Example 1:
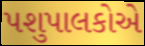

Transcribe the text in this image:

પશુપાલકોએ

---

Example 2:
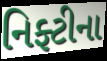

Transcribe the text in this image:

નિફ્ટીના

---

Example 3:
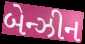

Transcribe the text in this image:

બેન્ઝીન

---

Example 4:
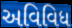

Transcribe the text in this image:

અવિવિધ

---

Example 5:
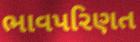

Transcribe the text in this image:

ભાવપરિણત